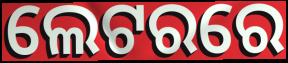
ଲେଟରରେ